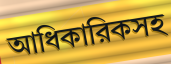
আধিকারিকসহ